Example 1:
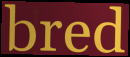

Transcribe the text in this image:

bred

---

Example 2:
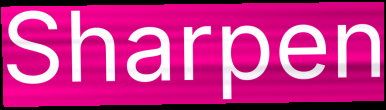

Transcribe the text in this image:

Sharpen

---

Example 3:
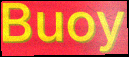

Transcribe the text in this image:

Buoy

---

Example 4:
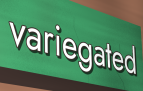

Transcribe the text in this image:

variegated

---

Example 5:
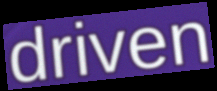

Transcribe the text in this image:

driven